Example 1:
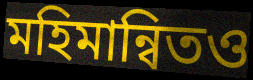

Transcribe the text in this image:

মহিমান্বিতও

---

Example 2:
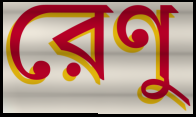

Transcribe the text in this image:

রেণু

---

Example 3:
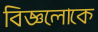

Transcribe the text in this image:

বিজ্ঞলোকে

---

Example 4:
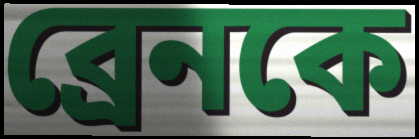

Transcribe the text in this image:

ব্রেনকে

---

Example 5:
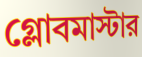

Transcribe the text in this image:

গ্লোবমাস্টার